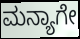
ಮನ್ಯಾಗೇ